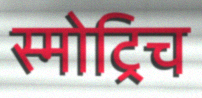
स्मोट्रिच